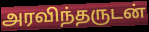
அரவிந்தருடன்